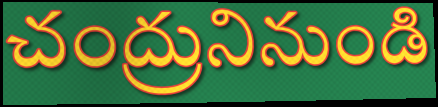
చంద్రునినుండి